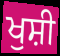
ਖੁਸ਼ੀ